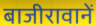
बाजीरावानें